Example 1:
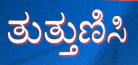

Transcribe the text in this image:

ತುತ್ತುಣಿಸಿ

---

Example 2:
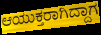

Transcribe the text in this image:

ಆಯುಕ್ತರಾಗಿದ್ದಾಗ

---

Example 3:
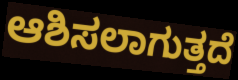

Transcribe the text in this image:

ಆಶಿಸಲಾಗುತ್ತದೆ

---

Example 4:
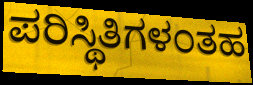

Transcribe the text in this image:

ಪರಿಸ್ಥಿತಿಗಳಂತಹ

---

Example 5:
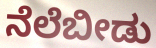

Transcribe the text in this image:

ನೆಲೆಬೀಡು